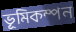
ভূমিকম্পন